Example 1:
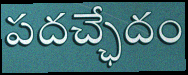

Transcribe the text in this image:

పదచ్ఛేదం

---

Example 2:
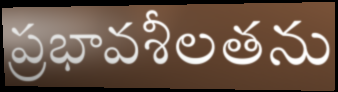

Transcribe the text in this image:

ప్రభావశీలతను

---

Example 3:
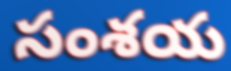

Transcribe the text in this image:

సంశయ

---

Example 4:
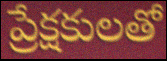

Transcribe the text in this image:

ప్రేక్షకులతో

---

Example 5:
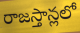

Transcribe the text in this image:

రాజస్తాన్లలో